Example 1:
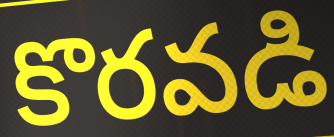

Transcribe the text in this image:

కొరవడి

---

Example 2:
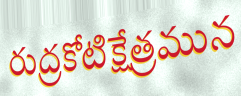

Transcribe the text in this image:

రుద్రకోటిక్షేత్రమున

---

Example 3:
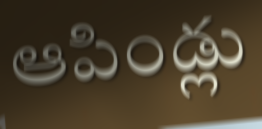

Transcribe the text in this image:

ఆపిండ్లు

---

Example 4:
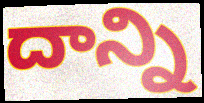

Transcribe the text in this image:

దాన్ని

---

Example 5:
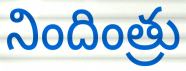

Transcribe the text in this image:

నిందింత్రు